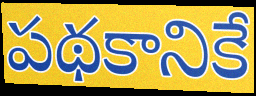
పథకానికే